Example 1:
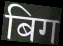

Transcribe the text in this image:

बिग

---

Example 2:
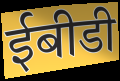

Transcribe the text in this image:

ईबीडी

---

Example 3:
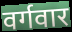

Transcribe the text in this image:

वर्गवार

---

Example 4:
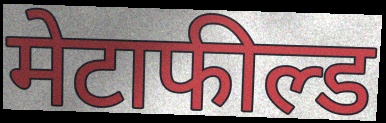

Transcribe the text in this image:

मेटाफील्ड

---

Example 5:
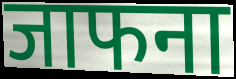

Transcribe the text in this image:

जाफना